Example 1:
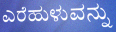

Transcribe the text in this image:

ಎರೆಹುಳುವನ್ನು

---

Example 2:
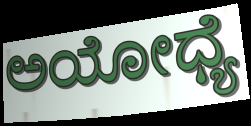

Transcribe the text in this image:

ಅಯೋಧ್ಯೆ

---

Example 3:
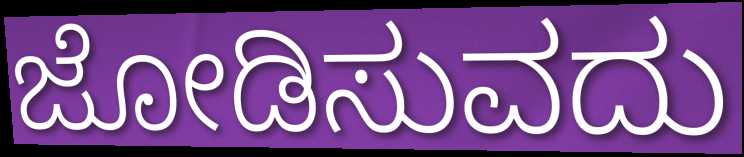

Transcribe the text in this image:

ಜೋಡಿಸುವದು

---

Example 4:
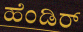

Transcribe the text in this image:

ಹೆಂಡಿರ್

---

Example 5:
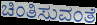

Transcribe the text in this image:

ಚಿಂತಿಸುವಂತೆ